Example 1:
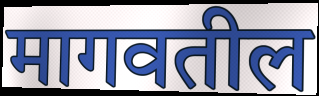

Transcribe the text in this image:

मागवतील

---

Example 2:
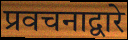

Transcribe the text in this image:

प्रवचनाद्वारे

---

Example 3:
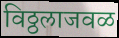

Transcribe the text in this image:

विठ्ठलाजवळ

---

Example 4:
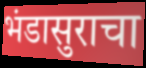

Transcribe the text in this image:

भंडासुराचा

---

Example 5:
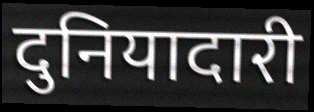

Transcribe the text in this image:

दुनियादारी